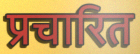
प्रचारित